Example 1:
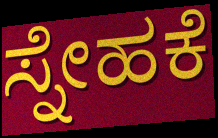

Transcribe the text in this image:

ಸ್ನೇಹಕೆ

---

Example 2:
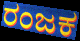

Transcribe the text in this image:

ರಂಜಕ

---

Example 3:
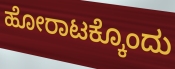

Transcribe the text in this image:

ಹೋರಾಟಕ್ಕೊಂದು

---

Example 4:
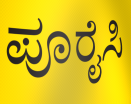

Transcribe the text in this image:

ಪೂರೈಸಿ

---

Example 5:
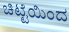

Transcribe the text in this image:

ಚಿಟ್ಟೆಯಿಂದ